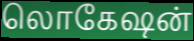
லொகேஷன்